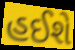
હઈશે